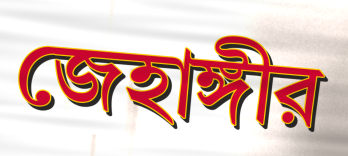
জেহাঙ্গীর